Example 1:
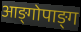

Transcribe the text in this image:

आङ्गोपाङ्ग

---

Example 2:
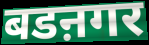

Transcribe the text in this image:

बडऩगर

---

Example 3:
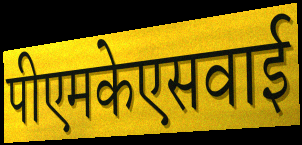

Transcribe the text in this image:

पीएमकेएसवाई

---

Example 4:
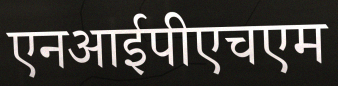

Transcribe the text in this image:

एनआईपीएचएम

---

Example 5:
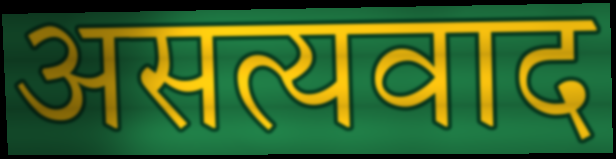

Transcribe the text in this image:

असत्यवाद